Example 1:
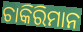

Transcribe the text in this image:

ଚାକିରିମାନ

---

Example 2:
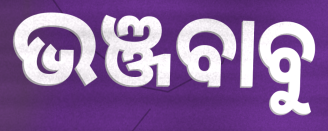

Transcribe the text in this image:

ଭଞ୍ଜବାବୁ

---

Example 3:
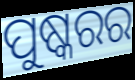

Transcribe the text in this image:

ପୁଷ୍କରର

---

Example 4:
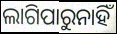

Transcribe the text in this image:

ଲାଗିପାରୁନାହିଁ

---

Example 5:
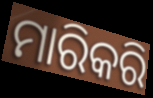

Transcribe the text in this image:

ମାରିକରି